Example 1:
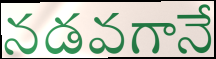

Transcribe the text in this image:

నడవగానే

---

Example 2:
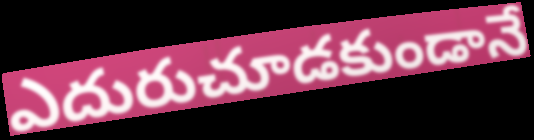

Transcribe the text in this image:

ఎదురుచూడకుండానే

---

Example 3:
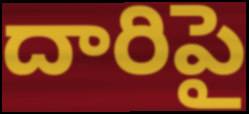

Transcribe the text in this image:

దారిపై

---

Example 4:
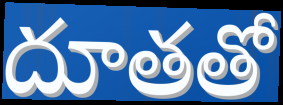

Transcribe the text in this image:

దూతతో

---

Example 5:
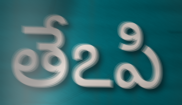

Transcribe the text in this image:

తేఽపి